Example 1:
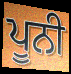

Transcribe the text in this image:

ਪੂਨੀ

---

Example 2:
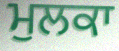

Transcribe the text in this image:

ਮੁਲਕਾ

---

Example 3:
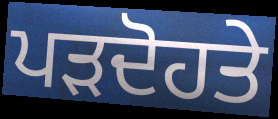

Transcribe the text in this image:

ਪੜਦੋਹਤੇ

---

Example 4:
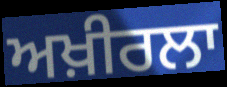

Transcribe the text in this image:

ਅਖ਼ੀਰਲਾ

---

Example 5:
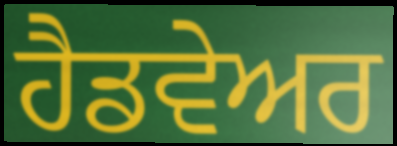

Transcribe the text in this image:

ਹੈਡਵੇਅਰ